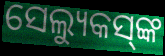
ସେଲ୍ୟୁକସ୍‌ଙ୍କ